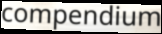
compendium